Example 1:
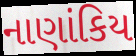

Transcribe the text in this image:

નાણાંકિય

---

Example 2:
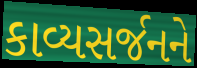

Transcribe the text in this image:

કાવ્યસર્જનને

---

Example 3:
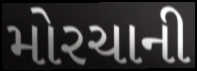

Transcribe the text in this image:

મોરચાની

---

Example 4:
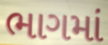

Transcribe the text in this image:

ભાગમાં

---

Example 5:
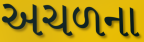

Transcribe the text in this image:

અચળના